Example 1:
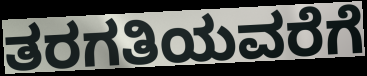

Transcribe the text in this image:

ತರಗತಿಯವರೆಗೆ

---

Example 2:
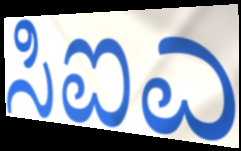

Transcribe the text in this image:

ಸಿಐಎ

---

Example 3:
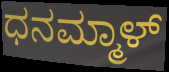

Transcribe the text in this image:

ಧನಮ್ಮಾಳ್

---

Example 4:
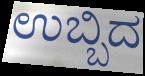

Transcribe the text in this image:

ಉಬ್ಬಿದ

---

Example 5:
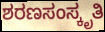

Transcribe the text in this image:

ಶರಣಸಂಸ್ಕೃತಿ